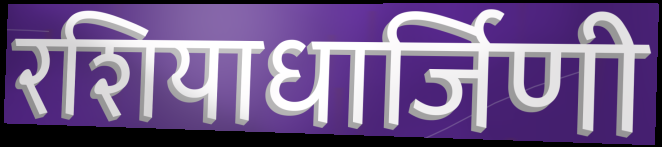
रशियाधार्जिणी